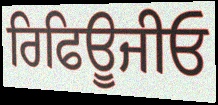
ਰਿਫਿਊਜੀਓ